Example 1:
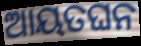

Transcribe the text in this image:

ଆୟତଘନ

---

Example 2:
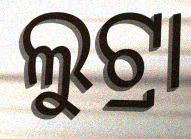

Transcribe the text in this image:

ଲୁଟ୍ରା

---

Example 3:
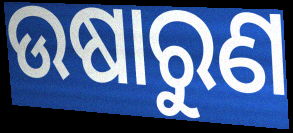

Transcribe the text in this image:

ଉଷାରୁଣ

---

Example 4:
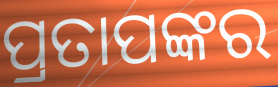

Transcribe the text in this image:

ପ୍ରତାପଙ୍କର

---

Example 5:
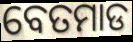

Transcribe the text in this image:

ବେତମାଡ